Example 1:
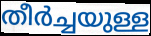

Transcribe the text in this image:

തീർച്ചയുള്ള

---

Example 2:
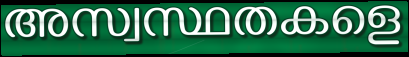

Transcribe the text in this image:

അസ്വസ്ഥതകളെ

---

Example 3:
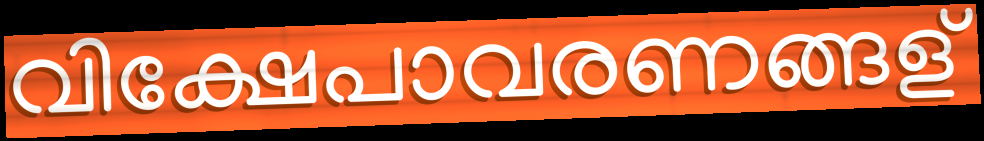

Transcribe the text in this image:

വിക്ഷേപാവരണങ്ങള്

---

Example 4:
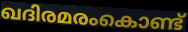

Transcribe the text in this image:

ഖദിരമരംകൊണ്ട്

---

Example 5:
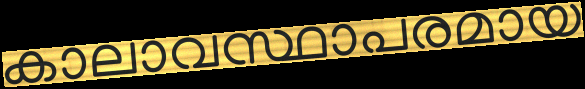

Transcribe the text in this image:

കാലാവസ്ഥാപരമായ